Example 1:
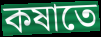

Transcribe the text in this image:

কষাতে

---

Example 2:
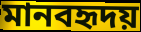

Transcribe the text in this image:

মানবহৃদয়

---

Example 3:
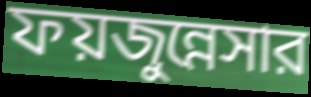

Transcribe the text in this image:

ফয়জুন্নেসার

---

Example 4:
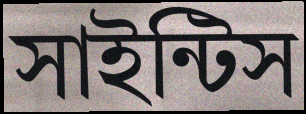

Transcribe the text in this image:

সাইন্টিস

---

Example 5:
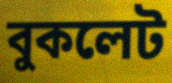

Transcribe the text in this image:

বুকলেট